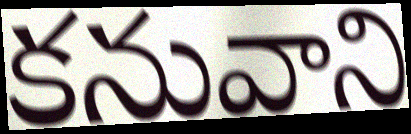
కనువాని